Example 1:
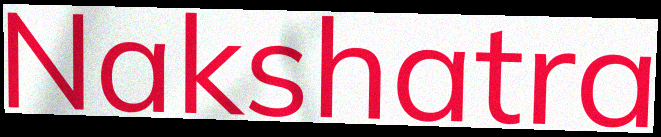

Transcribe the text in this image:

Nakshatra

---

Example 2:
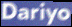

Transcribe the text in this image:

Dariyo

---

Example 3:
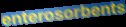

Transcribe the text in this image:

enterosorbents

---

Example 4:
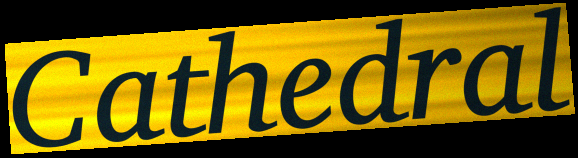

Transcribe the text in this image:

Cathedral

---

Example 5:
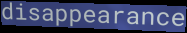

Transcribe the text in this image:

disappearance